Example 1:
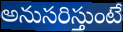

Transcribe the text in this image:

అనుసరిస్తుంటే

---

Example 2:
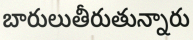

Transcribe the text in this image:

బారులుతీరుతున్నారు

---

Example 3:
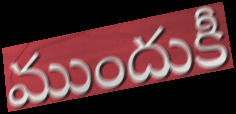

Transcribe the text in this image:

ముందుకీ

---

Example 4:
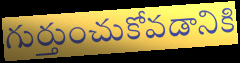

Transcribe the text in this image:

గుర్తుంచుకోవడానికి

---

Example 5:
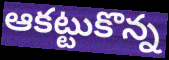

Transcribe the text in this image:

ఆకట్టుకొన్న